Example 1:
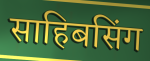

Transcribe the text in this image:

साहिबसिंग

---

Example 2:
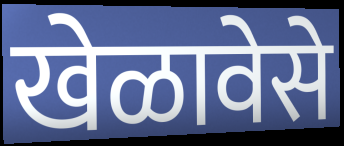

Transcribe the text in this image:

खेळावेसे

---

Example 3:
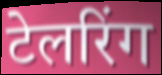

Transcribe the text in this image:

टेलरिंग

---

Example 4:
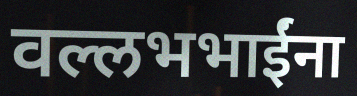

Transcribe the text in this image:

वल्लभभाईंना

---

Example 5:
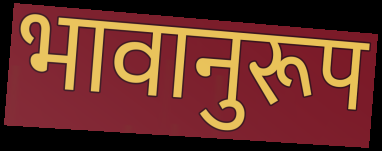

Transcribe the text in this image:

भावानुरूप